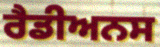
ਰੈਡੀਅਨਸ